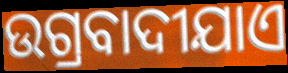
ଉଗ୍ରବାଦୀଯାଏ